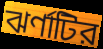
ঝর্ণাটির